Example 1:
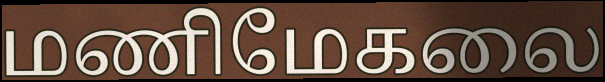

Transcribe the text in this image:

மணிமேகலை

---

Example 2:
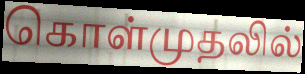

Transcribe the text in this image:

கொள்முதலில்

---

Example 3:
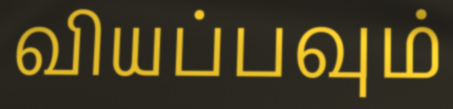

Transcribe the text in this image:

வியப்பவும்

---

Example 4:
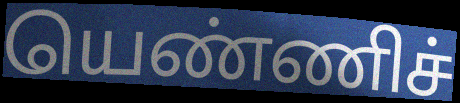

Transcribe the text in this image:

யெண்ணிச்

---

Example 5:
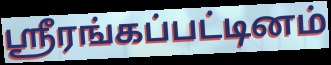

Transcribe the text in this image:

ஸ்ரீரங்கப்பட்டினம்